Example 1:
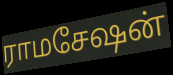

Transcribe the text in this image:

ராமசேஷன்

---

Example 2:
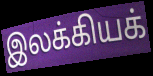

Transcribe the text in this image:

இலக்கியக்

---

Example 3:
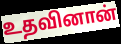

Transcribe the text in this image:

உதவினான்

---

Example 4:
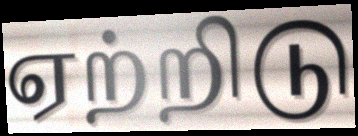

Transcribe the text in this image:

ஏற்றிடு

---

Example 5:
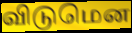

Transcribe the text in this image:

விடுமென